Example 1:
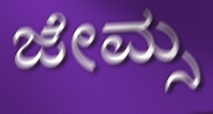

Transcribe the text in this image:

ಜೇಮ್ಸ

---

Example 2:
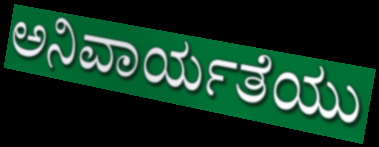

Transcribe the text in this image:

ಅನಿವಾರ್ಯತೆಯು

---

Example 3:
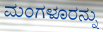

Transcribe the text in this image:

ಮಂಗಳೂರನ್ನು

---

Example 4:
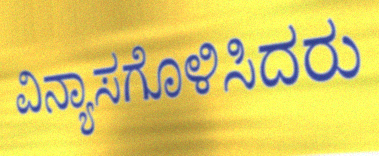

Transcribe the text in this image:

ವಿನ್ಯಾಸಗೊಳಿಸಿದರು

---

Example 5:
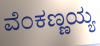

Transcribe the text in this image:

ವೆಂಕಣ್ಣಯ್ಯ